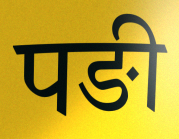
पङी